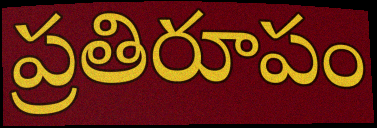
ప్రతిరూపం